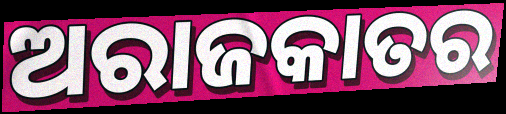
ଅରାଜକାତର